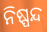
ନିଷ୍ପନ୍ଦ